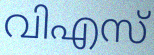
വിഎസ്